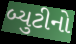
બ્યુટીનો